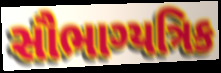
સૌભાગ્યત્રિક